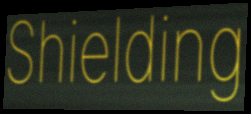
Shielding